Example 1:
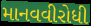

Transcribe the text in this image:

માનવવીરોધી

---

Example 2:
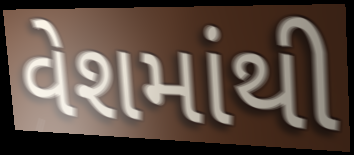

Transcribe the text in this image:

વેશમાંથી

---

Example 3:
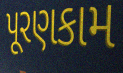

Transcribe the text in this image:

પૂરણકામ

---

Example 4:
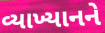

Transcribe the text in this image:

વ્યાખ્યાનને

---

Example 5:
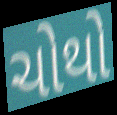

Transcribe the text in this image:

ચોથો